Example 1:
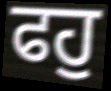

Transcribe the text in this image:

ਫਹੁ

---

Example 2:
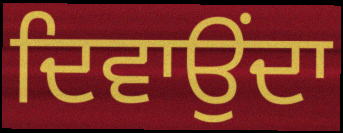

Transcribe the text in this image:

ਦਿਵਾਉਂਦਾ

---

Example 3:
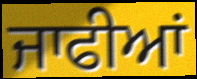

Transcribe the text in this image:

ਜਾਫੀਆਂ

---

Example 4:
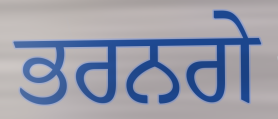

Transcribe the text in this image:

ਭਰਨਗੇ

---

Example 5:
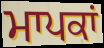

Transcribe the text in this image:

ਮਾਪਕਾਂ